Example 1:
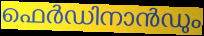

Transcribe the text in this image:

ഫെർഡിനാൻഡും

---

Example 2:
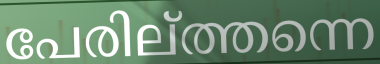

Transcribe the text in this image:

പേരില്ത്തന്നെ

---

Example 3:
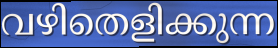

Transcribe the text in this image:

വഴിതെളിക്കുന്ന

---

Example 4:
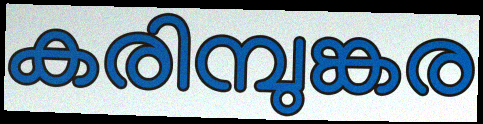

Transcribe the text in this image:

കരിമ്പുങ്കര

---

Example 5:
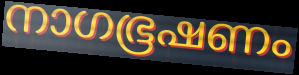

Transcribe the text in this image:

നാഗഭൂഷണം